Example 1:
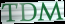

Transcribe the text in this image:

TDM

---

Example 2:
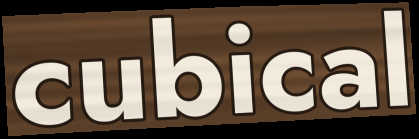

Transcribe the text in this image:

cubical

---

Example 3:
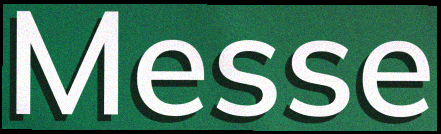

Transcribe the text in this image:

Messe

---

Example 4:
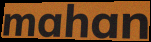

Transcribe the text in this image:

mahan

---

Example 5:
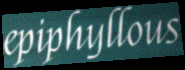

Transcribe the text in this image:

epiphyllous